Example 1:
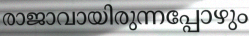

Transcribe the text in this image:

രാജാവായിരുന്നപ്പോഴും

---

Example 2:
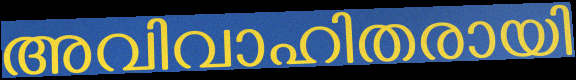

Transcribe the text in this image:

അവിവാഹിതരായി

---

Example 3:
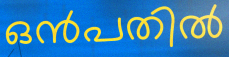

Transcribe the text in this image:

ഒൻപതിൽ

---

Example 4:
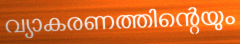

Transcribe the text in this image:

വ്യാകരണത്തിന്റെയും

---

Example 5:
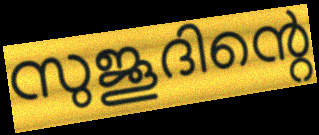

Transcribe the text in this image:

സുജൂദിന്റെ